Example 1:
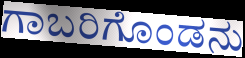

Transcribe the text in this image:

ಗಾಬರಿಗೊಂಡನು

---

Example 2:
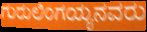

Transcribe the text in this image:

ಗುರುಲಿಂಗಯ್ಯನವರು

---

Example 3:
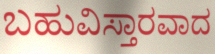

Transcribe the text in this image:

ಬಹುವಿಸ್ತಾರವಾದ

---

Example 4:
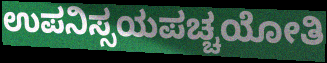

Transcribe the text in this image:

ಉಪನಿಸ್ಸಯಪಚ್ಚಯೋತಿ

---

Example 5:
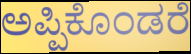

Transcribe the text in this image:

ಅಪ್ಪಿಕೊಂಡರೆ